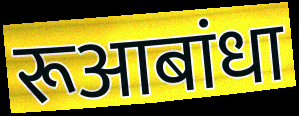
रूआबांधा